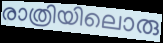
രാത്രിയിലൊരു